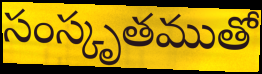
సంస్కృతముతో